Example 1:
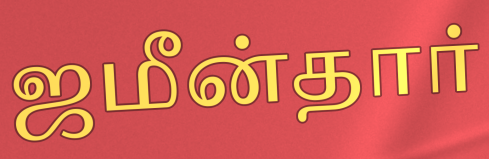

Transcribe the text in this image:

ஜமீன்தார்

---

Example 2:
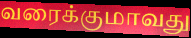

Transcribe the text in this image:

வரைக்குமாவது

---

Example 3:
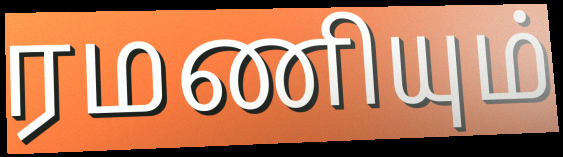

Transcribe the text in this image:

ரமணியும்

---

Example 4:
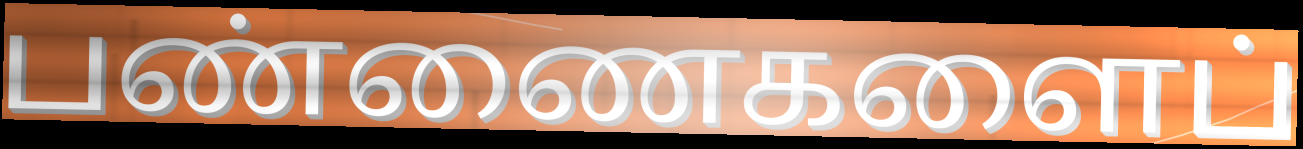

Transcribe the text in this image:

பண்ணைகளைப்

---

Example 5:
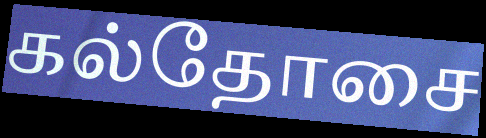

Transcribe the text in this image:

கல்தோசை